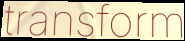
transform